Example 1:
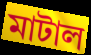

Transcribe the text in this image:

মাটাল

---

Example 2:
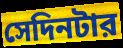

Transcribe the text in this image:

সেদিনটার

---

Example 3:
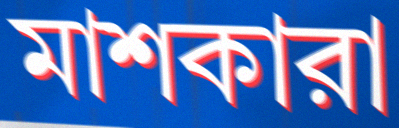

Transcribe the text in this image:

মাশকারা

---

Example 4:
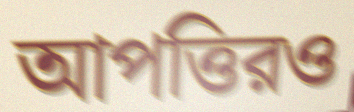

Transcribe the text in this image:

আপত্তিরও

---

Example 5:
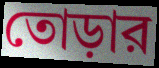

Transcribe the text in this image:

তোড়ার